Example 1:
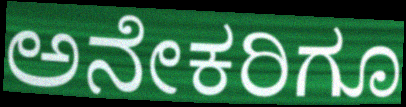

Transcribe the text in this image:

ಅನೇಕರಿಗೂ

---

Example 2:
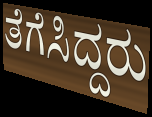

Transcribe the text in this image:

ತೆಗೆಸಿದ್ದರು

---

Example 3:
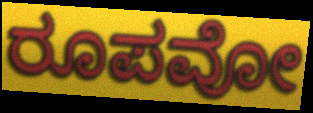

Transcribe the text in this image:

ರೂಪವೋ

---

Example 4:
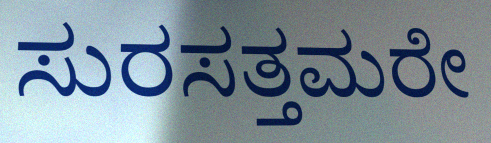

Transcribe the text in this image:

ಸುರಸತ್ತಮರೇ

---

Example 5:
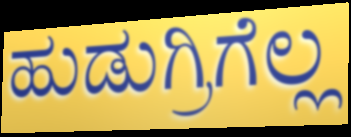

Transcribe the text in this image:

ಹುಡುಗ್ರಿಗೆಲ್ಲ